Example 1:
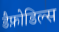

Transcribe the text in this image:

डैफ़ोडिल्स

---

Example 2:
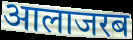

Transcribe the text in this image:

आलाजरब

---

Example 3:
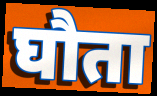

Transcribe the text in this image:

घौता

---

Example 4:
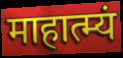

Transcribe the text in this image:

माहात्म्यं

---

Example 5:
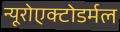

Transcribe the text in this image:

न्यूरोएक्टोडर्मल